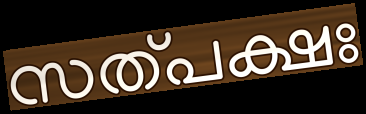
സത്പക്ഷഃ